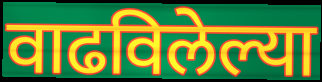
वाढविलेल्या